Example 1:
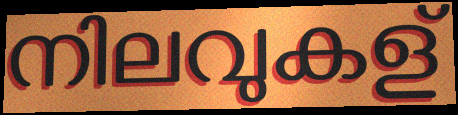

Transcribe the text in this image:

നിലവുകള്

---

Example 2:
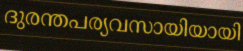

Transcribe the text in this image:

ദുരന്തപര്യവസായിയായി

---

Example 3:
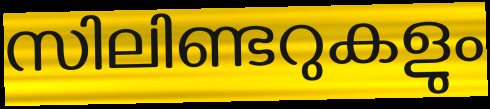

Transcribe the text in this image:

സിലിണ്ടറുകളും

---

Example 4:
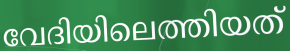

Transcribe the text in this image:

വേദിയിലെത്തിയത്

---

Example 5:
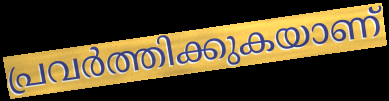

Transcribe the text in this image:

പ്രവർത്തിക്കുകയാണ്